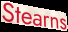
Stearns